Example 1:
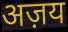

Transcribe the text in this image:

अज़य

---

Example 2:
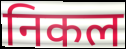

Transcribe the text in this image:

निकल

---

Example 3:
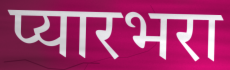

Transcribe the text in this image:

प्यारभरा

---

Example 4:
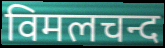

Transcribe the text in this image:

विमलचन्द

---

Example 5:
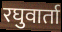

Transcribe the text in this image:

रघुवार्ता